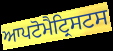
ਆਪਟੋਮੈਟ੍ਰਿਸਟਸ